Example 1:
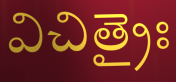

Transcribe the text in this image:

విచిత్రైః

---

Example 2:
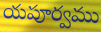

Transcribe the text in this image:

యపూర్వము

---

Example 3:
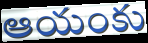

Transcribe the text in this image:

ఆయంకు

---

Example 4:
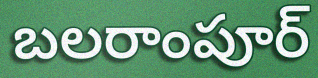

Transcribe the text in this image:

బలరాంపూర్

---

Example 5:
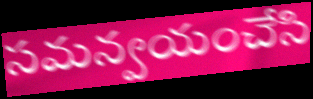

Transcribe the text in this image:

సమన్వయంచేసి